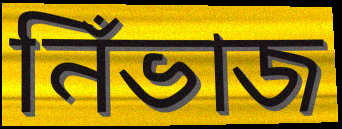
নিঁভাজ